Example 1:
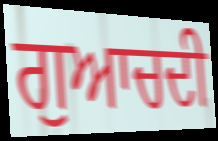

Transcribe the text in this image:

ਗੁਆਚਦੀ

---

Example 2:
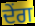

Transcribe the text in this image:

ਦੇਂਗ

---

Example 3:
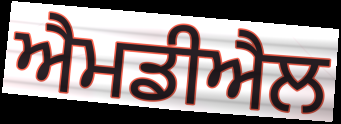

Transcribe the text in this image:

ਐਮਡੀਐਲ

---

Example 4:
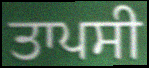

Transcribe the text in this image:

ਤਾਪਸੀ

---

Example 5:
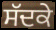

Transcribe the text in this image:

ਸੱਦਕੇ